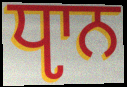
ਧੵਾਨ